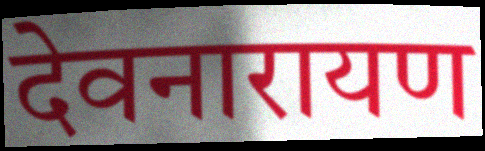
देवनारायण